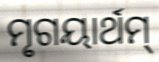
ମୃଗୟାର୍ଥମ୍